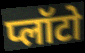
प्लॉटो